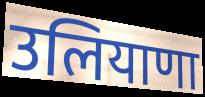
उलियाणा